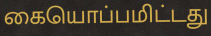
கையொப்பமிட்டது